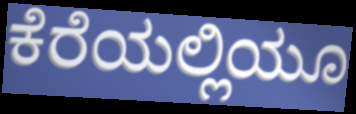
ಕೆರೆಯಲ್ಲಿಯೂ